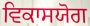
ਵਿਕਾਸਯੋਗ